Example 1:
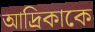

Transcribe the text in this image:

আদ্রিকাকে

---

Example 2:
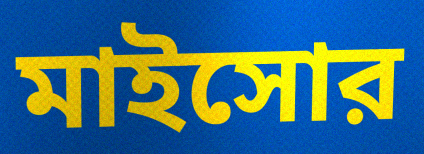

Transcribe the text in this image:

মাইসোর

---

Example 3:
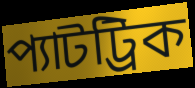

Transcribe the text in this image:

প্যাটট্রিক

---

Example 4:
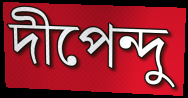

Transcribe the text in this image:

দীপেন্দু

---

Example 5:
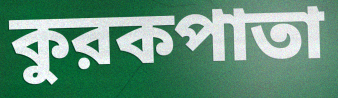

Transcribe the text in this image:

কুরকপাতা